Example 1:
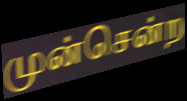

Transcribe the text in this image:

முன்சென்ற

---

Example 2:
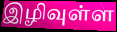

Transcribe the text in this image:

இழிவுள்ள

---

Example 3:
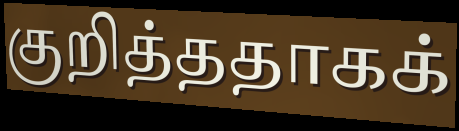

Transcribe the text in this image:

குறித்ததாகக்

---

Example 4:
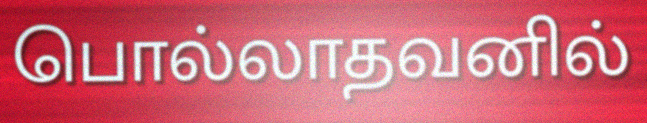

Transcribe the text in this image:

பொல்லாதவனில்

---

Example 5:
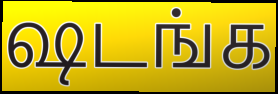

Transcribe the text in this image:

ஷடங்க